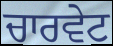
ਚਾਰਵੇਟ